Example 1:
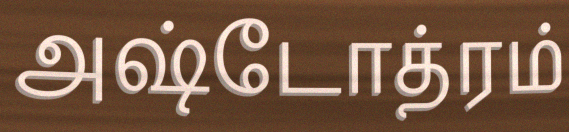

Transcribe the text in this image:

அஷ்டோத்ரம்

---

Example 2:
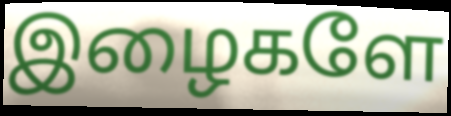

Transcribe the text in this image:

இழைகளே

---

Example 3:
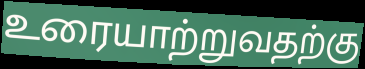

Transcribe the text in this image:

உரையாற்றுவதற்கு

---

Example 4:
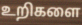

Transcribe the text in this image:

உறிகளை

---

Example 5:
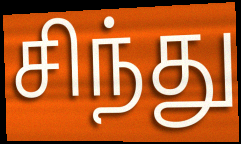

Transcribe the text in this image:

சிந்து